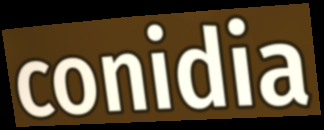
conidia